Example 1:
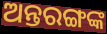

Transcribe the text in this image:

ଅନ୍ତରଙ୍ଗଙ୍କ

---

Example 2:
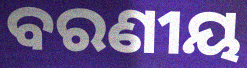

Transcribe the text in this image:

ବରଣୀୟ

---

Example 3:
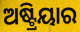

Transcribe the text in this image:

ଅଷ୍ଟ୍ରିୟାର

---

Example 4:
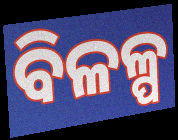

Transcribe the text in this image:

ବିଳଳ୍ପ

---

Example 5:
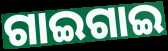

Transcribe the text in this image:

ଗାଇଗାଇ